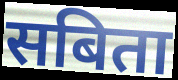
सबिता